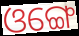
ଓଙ୍ଗେ